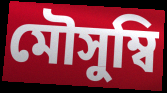
মৌসুম্বি